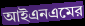
আইএনএমের